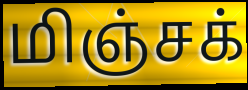
மிஞ்சக்